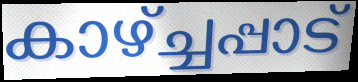
കാഴ്ച്ചപ്പാട്